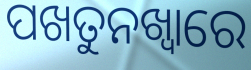
ପଖତୁନଖ୍ୱାରେ